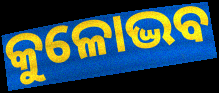
କୁଳୋଦ୍ଭବ